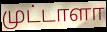
முட்டாளா